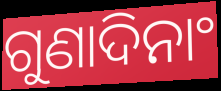
ଗୁଣାଦିନାଂ